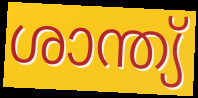
ശാന്ത്യ്